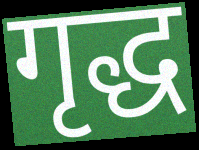
गृद्ध